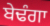
ਬੇਢੰਗਾ